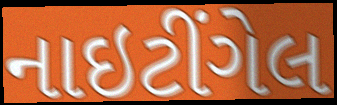
નાઇટીંગેલ